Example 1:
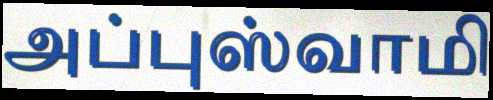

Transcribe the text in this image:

அப்புஸ்வாமி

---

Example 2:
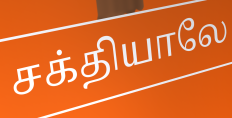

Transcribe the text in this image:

சக்தியாலே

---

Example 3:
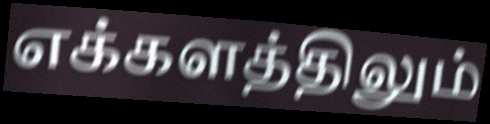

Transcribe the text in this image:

எக்களத்திலும்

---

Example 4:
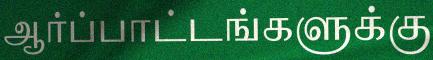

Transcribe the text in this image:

ஆர்ப்பாட்டங்களுக்கு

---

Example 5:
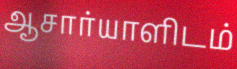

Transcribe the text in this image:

ஆசார்யாளிடம்